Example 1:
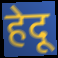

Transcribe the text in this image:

हेदू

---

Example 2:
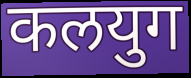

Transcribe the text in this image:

कलयुग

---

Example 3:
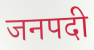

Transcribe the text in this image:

जनपदी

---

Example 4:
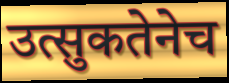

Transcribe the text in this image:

उत्सुकतेनेच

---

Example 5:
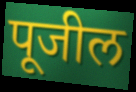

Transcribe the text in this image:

पूजील